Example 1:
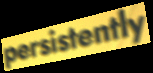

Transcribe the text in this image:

persistently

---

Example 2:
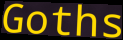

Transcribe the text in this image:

Goths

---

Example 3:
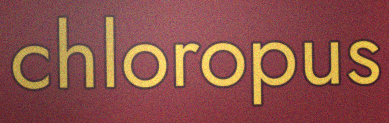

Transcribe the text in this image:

chloropus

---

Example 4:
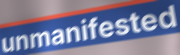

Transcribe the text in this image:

unmanifested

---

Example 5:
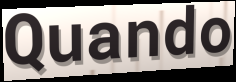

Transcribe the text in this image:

Quando